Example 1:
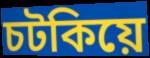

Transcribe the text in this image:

চটকিয়ে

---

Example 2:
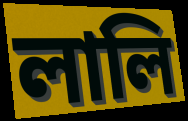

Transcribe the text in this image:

লালি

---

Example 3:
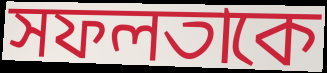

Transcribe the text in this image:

সফলতাকে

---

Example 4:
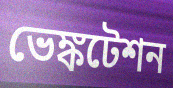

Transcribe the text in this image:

ভেঙ্কটেশন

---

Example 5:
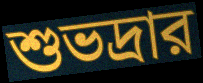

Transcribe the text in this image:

শুভদ্রার